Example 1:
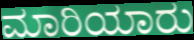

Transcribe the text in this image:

ಮಾರಿಯಾರು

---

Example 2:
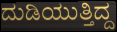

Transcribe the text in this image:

ದುಡಿಯುತ್ತಿದ್ದ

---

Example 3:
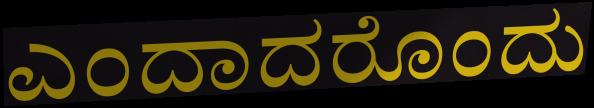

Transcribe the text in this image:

ಎಂದಾದರೊಂದು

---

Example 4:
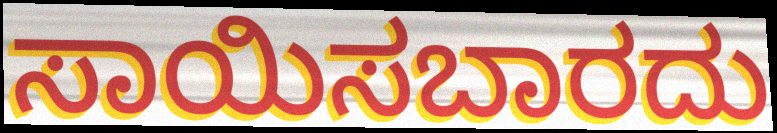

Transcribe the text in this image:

ಸಾಯಿಸಬಾರದು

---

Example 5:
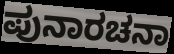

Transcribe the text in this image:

ಪುನಾರಚನಾ